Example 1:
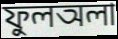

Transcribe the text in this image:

ফুলঅলা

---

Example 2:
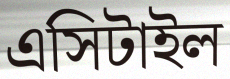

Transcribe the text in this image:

এসিটাইল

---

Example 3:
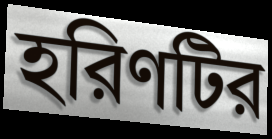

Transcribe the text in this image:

হরিণটির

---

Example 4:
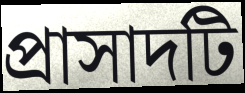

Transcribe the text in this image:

প্রাসাদটি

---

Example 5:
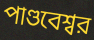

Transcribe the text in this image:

পাণ্ডবেশ্বর